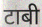
टाबी